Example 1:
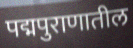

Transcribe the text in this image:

पद्मपुराणातील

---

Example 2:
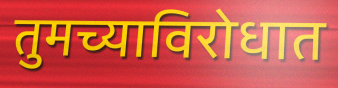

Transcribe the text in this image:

तुमच्याविरोधात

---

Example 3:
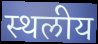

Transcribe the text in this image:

स्थलीय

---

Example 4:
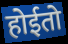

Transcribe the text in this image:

होईतो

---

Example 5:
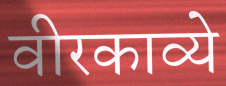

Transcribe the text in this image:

वीरकाव्ये